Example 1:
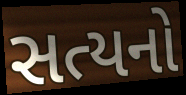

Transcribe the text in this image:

સત્યનો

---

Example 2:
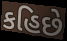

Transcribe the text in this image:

કહિછે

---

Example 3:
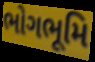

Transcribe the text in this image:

ભોગભૂમિ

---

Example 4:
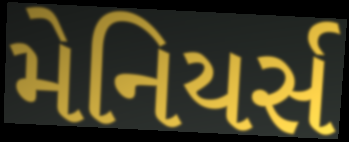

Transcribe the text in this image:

મેનિયર્સ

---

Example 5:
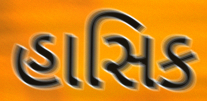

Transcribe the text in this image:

હાસિક